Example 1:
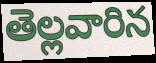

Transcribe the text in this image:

తెల్లవారిన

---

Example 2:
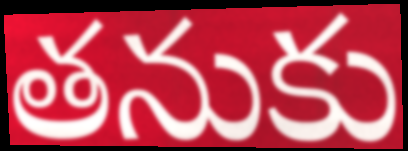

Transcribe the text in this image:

తనుకు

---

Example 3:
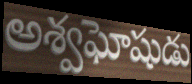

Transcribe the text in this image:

అశ్వఘోషుడు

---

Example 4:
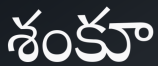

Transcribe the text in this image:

శంకూ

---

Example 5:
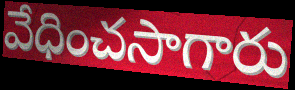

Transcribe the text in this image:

వేధించసాగారు